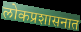
लोकप्रशासनात